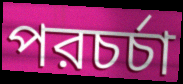
পরচর্চা